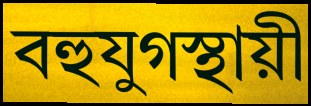
বহুযুগস্থায়ী